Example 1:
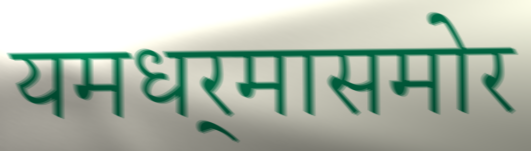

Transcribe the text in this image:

यमधर्मासमोर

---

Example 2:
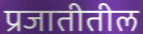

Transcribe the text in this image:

प्रजातीतील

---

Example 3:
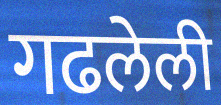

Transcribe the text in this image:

गढलेली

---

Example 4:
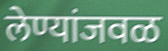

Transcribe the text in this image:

लेण्यांजवळ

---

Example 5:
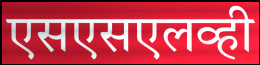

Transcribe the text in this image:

एसएसएलव्ही